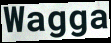
Wagga